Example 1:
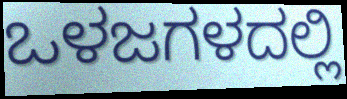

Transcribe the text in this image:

ಒಳಜಗಳದಲ್ಲಿ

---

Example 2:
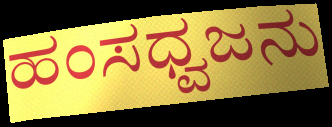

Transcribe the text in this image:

ಹಂಸಧ್ವಜನು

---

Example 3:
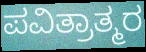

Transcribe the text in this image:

ಪವಿತ್ರಾತ್ಮರ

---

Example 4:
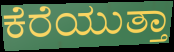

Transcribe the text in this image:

ಕೆರೆಯುತ್ತಾ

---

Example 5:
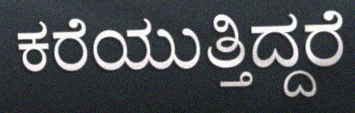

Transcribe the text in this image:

ಕರೆಯುತ್ತಿದ್ದರೆ